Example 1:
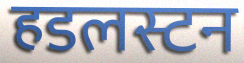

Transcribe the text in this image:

हडलस्टन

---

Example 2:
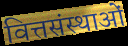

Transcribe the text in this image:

वित्तसंस्थाओं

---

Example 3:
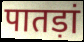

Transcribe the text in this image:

पातड़ां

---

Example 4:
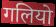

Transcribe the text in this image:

गलियो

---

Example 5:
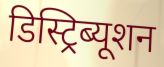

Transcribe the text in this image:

डिस्ट्रिब्यूशन